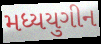
મધ્યયુગીન